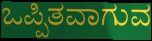
ಒಪ್ಪಿತವಾಗುವ